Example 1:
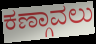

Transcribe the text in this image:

ಕಣ್ಗಾವಲು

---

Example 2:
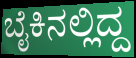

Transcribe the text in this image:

ಬೈಕಿನಲ್ಲಿದ್ದ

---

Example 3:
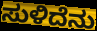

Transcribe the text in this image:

ಸುಳಿದೆನು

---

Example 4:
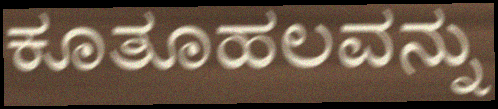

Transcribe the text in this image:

ಕೂತೂಹಲವನ್ನು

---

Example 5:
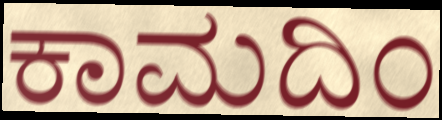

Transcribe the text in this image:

ಕಾಮದಿಂ